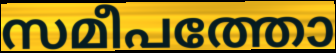
സമീപത്തോ